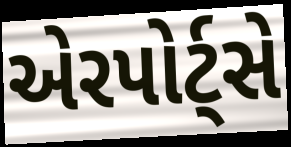
એરપોર્ટ્સે